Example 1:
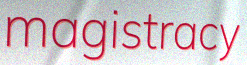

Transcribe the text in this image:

magistracy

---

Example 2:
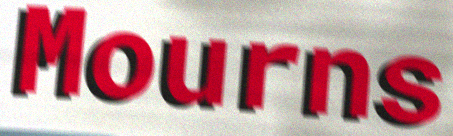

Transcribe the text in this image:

Mourns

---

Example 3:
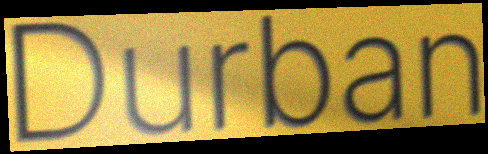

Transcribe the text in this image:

Durban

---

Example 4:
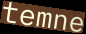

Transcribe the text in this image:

temne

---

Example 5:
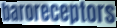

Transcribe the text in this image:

baroreceptors